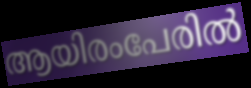
ആയിരംപേരിൽ